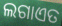
ଲଗାଏତ